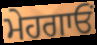
ਮੇਹਗਾਓਂ